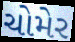
ચોમેર